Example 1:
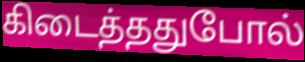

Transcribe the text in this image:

கிடைத்ததுபோல்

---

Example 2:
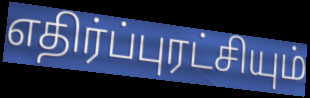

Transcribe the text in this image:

எதிர்ப்புரட்சியும்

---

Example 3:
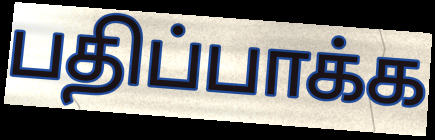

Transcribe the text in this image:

பதிப்பாக்க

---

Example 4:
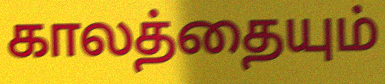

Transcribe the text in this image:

காலத்தையும்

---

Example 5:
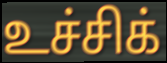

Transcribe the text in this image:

உச்சிக்